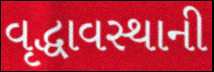
વૃદ્ધાવસ્થાની